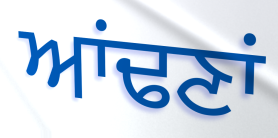
ਆਂਢਣਾਂ